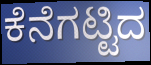
ಕೆನೆಗಟ್ಟಿದ